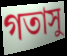
গতাসু